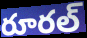
రూరల్